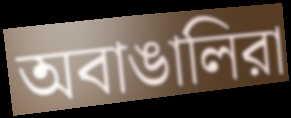
অবাঙালিরা